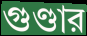
গুণ্ডার